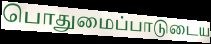
பொதுமைப்பாடுடைய